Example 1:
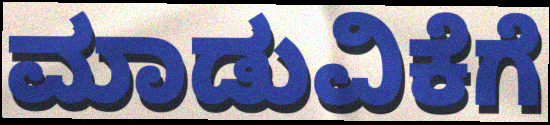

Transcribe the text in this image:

ಮಾಡುವಿಕೆಗೆ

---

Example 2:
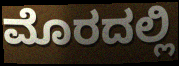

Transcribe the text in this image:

ಮೊರದಲ್ಲಿ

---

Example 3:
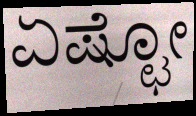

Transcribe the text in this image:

ಏಷ್ಟೋ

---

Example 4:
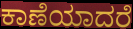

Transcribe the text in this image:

ಕಾಣೆಯಾದರೆ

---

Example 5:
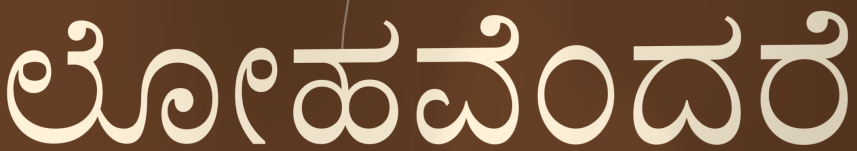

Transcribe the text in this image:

ಲೋಹವೆಂದರೆ